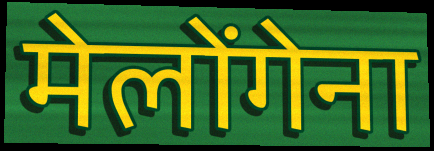
मेलोंगेना